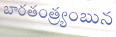
బారతంత్ర్యంబున